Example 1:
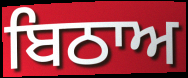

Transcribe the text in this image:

ਬਿਠਾਅ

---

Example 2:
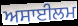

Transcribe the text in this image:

ਅਸਾਈਲਮ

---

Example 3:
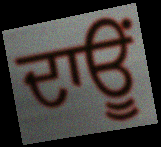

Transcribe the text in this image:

ਦਾਊਂ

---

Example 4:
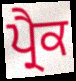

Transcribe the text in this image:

ਪ੍ਰੈਕ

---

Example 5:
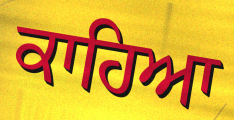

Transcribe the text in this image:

ਕਾਹਿਆ